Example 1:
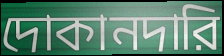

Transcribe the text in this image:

দোকানদারি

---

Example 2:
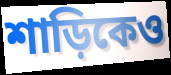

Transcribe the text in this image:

শাড়িকেও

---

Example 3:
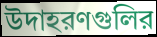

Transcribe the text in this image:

উদাহরণগুলির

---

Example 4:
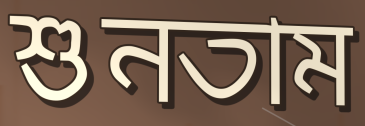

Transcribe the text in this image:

শুনতাম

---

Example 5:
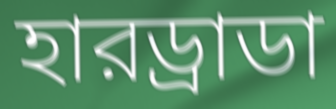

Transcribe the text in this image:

হারড্রাডা